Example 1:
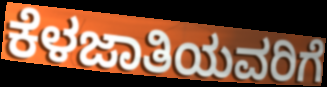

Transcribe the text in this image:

ಕೆಳಜಾತಿಯವರಿಗೆ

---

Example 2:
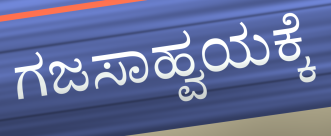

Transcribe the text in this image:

ಗಜಸಾಹ್ವಯಕ್ಕೆ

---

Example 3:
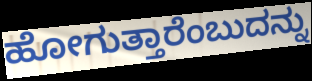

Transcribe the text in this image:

ಹೋಗುತ್ತಾರೆಂಬುದನ್ನು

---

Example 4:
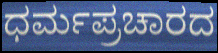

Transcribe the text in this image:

ಧರ್ಮಪ್ರಚಾರದ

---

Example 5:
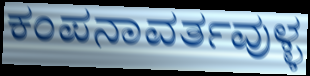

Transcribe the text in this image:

ಕಂಪನಾವರ್ತವುಳ್ಳ